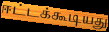
ஈட்டக்கூடியது